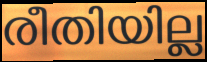
രീതിയില്ല